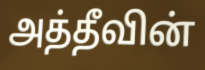
அத்தீவின்